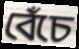
বেঁচে